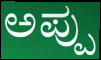
ಅಪ್ಪು